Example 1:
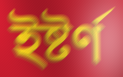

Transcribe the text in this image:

ইষ্টৰ্ণ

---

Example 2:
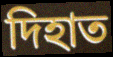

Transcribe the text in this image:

দিহাত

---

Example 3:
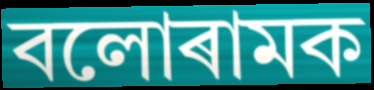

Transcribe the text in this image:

বলোৰামক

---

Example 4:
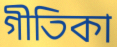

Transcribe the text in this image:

গীতিকা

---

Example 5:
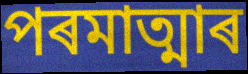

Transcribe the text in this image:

পৰমাত্মাৰ